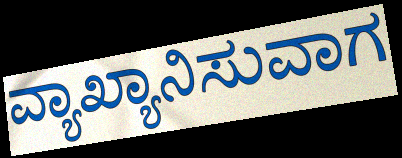
ವ್ಯಾಖ್ಯಾನಿಸುವಾಗ